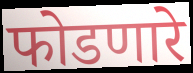
फोडणारे